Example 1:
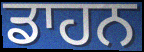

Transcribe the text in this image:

ਡਾਹਨ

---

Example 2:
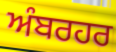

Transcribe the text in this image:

ਅੰਬਰਹਰ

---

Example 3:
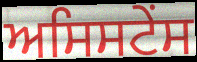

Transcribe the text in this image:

ਅਸਿਸਟੇਂਸ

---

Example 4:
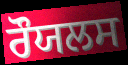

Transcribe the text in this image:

ਰੌਯਲਸ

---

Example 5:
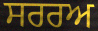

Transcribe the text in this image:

ਸਰਰਅ